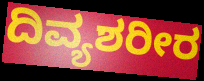
ದಿವ್ಯಶರೀರ